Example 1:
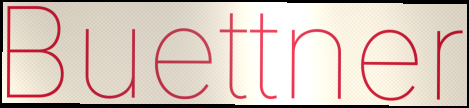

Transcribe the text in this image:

Buettner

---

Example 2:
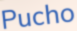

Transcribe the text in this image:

Pucho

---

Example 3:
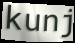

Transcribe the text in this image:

kunj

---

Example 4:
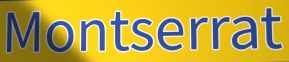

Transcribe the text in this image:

Montserrat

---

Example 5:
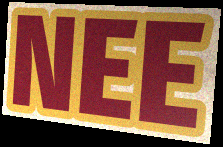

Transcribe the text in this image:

NEE